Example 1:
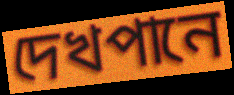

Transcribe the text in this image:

দেখপানে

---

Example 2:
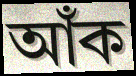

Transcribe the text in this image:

আঁক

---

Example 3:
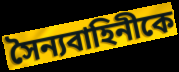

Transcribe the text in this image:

সৈন্যবাহিনীকে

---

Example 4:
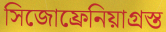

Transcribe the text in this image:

সিজোফ্রেনিয়াগ্রস্ত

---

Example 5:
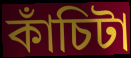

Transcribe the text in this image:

কাঁচিটা